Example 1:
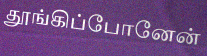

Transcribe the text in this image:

தூங்கிப்போனேன்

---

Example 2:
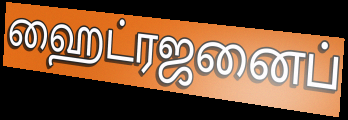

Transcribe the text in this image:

ஹைட்ரஜனைப்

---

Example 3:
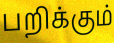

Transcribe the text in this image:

பறிக்கும்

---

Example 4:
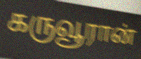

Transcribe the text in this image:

கருவூரான்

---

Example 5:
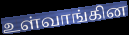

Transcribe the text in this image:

உள்வாங்கின